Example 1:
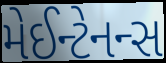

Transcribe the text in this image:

મેઈન્ટેનન્સ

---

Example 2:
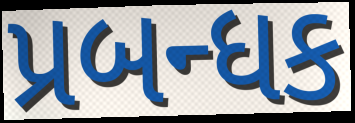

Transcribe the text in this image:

પ્રબન્ધક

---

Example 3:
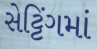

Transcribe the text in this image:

સેટ્ટિંગમાં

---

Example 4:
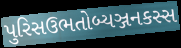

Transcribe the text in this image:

પુરિસઉભતોબ્યઞ્જનકસ્સ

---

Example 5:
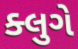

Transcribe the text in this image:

ક્લુગે